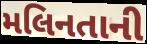
મલિનતાની